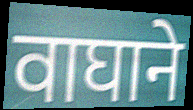
वाघाने